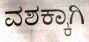
ವಶಕ್ಕಾಗಿ